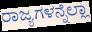
ರಾಜ್ಯಗಳನ್ನೆಲ್ಲಾ